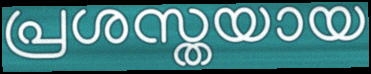
പ്രശസ്തയായ